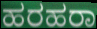
ಹರಹರಾ